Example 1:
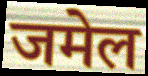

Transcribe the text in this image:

जमेल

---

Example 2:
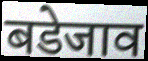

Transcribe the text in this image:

बडेजाव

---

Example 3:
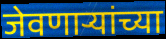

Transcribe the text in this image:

जेवणाऱ्यांच्या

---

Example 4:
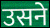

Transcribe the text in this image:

उसने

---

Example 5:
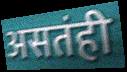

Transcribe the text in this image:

असतंही